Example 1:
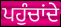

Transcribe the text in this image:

ਪਹੁੰਚਾਂਦੇ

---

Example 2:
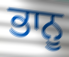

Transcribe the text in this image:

ਭਾਨੂ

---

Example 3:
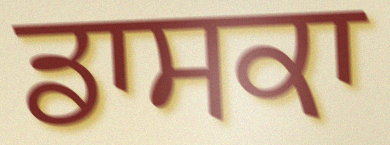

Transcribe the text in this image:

ਡਾਸਕਾ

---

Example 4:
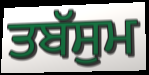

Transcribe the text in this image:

ਤਬੱਸੁਮ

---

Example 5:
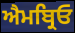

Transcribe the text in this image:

ਐਮਬ੍ਰਿਓ